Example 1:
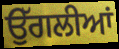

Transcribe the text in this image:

ਉੱਗਲੀਆਂ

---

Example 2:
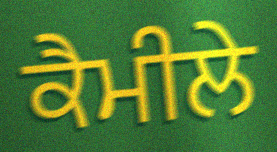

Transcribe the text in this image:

ਕੈਮੀਲੇ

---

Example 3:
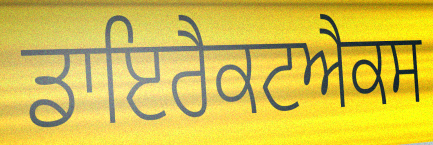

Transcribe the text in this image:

ਡਾਇਰੈਕਟਐਕਸ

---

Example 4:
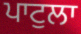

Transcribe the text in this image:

ਪਾਟੁਲਾ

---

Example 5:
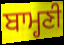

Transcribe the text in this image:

ਬਾਮ੍ਹਣੀ